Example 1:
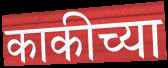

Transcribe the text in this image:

काकीच्या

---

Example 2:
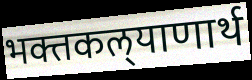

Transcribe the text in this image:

भक्तकल्याणार्थ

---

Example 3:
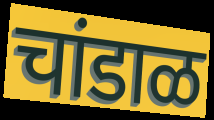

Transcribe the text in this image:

चांडाळ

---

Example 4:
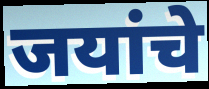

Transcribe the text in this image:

जयांचे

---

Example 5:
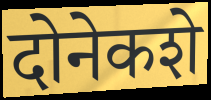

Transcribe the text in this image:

दोनेकशे